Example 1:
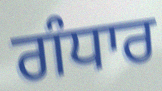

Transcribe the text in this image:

ਗੰਧਾਰ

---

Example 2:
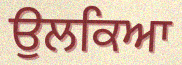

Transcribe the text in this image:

ਉਲਕਿਆ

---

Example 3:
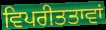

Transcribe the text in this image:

ਵਿਪਰੀਤਤਾਵਾਂ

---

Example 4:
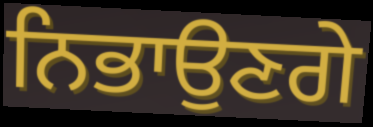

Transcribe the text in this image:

ਨਿਭਾਉਣਗੇ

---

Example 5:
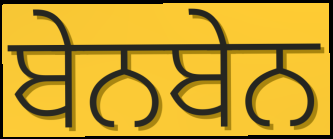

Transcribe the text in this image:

ਬੇਨਬੇਨ